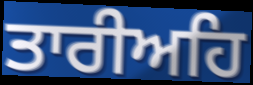
ਤਾਰੀਅਹਿ